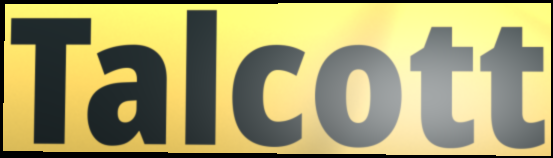
Talcott